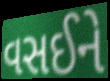
વસઈને